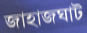
জাহাজঘাট